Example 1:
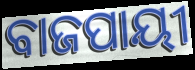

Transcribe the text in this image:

ବାଜପାୟୀ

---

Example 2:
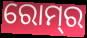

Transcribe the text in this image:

ରୋମ୍‌ର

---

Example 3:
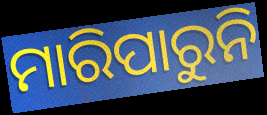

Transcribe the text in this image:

ମାରିପାରୁନି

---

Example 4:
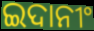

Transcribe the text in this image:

ଇଦାନୀଂ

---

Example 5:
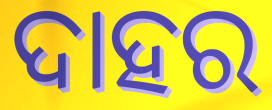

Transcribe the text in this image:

ଦାହର